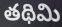
తథిమి